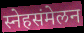
स्नेहसंमेलन